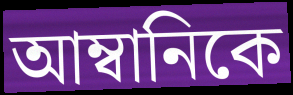
আম্বানিকে